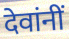
देवांनीं